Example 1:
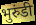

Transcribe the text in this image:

भुरुंडी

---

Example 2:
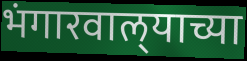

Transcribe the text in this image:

भंगारवाल्याच्या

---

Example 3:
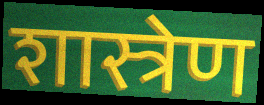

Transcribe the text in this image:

शास्त्रेण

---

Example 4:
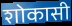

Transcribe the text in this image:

शोकासी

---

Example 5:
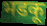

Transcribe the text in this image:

भडकू